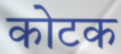
कोटक